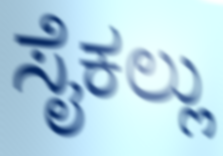
ಸೈಕಲ್ಲು